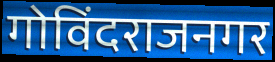
गोविंदराजनगर